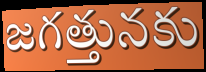
జగత్తునకు